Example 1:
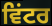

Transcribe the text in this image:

ਵਿਂਟਰ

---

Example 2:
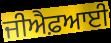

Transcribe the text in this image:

ਜੀਐਫ਼ਆਈ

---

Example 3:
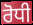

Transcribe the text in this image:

ਰੋਧੀ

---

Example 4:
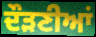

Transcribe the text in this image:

ਦੌੜਣੀਆਂ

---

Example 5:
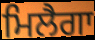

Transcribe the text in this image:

ਮਿਲੈਗਾ